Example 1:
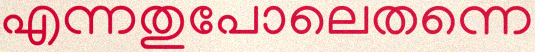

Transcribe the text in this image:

എന്നതുപോലെതന്നെ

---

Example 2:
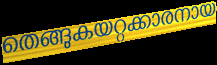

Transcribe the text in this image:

തെങ്ങുകയറ്റക്കാരനായ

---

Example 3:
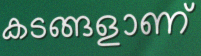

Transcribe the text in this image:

കടങ്ങളാണ്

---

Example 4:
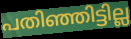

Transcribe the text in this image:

പതിഞ്ഞിട്ടില്ല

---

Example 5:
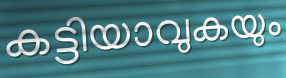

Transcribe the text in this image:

കട്ടിയാവുകയും